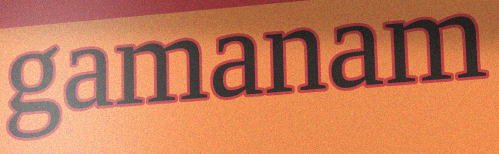
gamanam